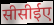
सीसीईए